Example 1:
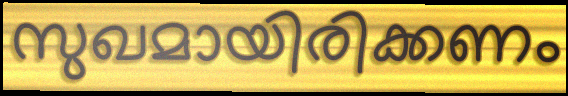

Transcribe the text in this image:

സുഖമായിരിക്കണം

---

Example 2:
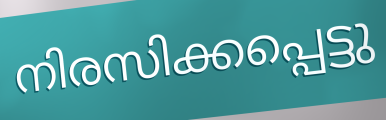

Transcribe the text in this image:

നിരസിക്കപ്പെട്ടു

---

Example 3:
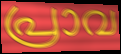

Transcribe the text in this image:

പ്രാവ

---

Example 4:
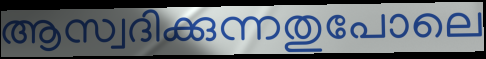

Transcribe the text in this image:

ആസ്വദിക്കുന്നതുപോലെ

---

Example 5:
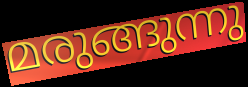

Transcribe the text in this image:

മരുങ്ങുന്നു